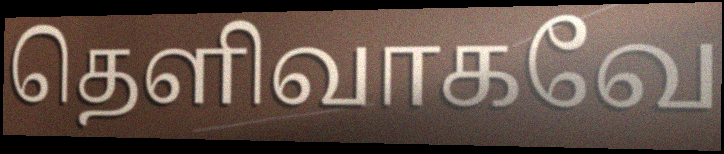
தெளிவாகவே